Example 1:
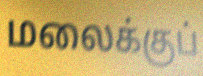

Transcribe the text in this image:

மலைக்குப்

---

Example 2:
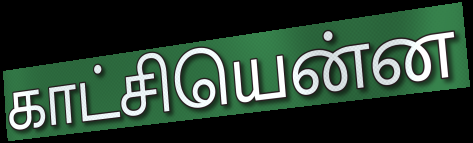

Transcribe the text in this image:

காட்சியென்ன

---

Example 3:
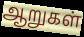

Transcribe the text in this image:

ஆறுகள்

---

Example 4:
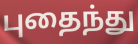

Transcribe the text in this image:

புதைந்து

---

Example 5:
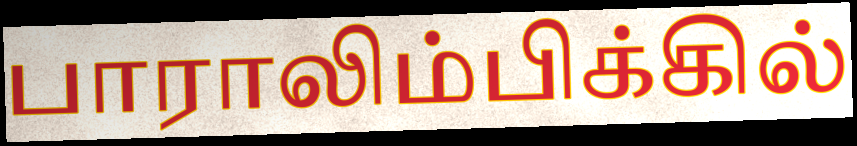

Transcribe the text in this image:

பாராலிம்பிக்கில்